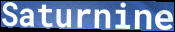
Saturnine